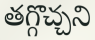
తగ్గొచ్చని